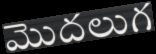
మొదలుగ